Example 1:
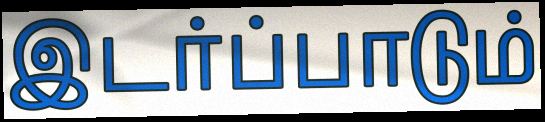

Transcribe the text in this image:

இடர்ப்பாடும்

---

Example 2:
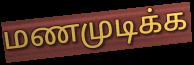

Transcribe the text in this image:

மணமுடிக்க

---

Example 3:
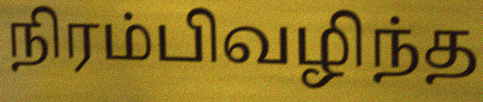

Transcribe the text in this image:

நிரம்பிவழிந்த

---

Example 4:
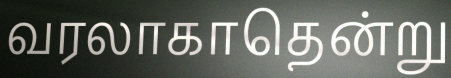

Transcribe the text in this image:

வரலாகாதென்று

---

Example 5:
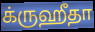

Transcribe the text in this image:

க்ருஹீதா